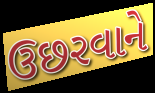
ઉછરવાને